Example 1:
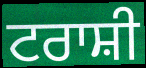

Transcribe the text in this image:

ਟਰਾਸ਼ੀ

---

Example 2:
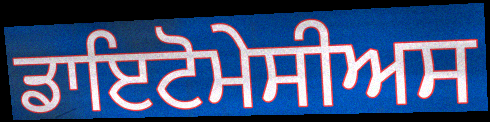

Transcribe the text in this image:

ਡਾਇਟੋਮੇਸੀਅਸ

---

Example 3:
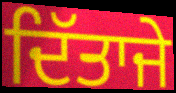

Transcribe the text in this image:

ਦਿੱਤਾਜੇ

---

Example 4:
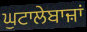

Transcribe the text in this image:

ਘੁਟਾਲੇਬਾਜ਼ਾਂ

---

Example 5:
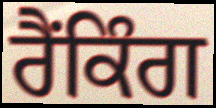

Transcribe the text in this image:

ਰੈੰਕਿੰਗ